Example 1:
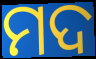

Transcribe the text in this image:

ମଦ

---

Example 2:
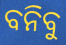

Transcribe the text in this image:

ବନିବୁ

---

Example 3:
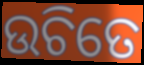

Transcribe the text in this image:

ଉଚିତେ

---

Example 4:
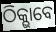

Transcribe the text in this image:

ଠିକ୍ଭାବେ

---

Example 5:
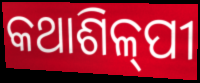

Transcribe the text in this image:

କଥାଶିଳ୍‌ପୀ